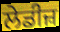
ਲੇਡੀਜ਼